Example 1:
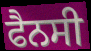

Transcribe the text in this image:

ਫੈਨਸੀ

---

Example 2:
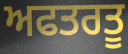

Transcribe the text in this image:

ਅਫਤਰਤੂ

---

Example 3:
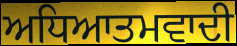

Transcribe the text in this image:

ਅਧਿਆਤਮਵਾਦੀ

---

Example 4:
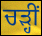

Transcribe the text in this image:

ਚੜ੍ਹੀਂ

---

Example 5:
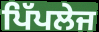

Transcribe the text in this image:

ਪਿੱਪਲੇਜ